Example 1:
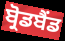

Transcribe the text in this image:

ਬ੍ਰੋਡਬੈਂਡ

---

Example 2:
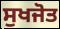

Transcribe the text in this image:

ਸੁਖਜੋਤ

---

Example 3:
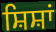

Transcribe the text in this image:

ਸ਼ਿਸ਼ਾਂ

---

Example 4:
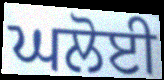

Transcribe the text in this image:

ਘਲੋਈ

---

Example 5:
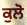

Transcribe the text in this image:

ਕੁਲੋ